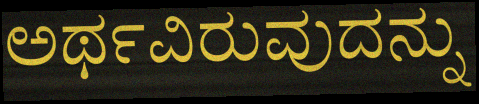
ಅರ್ಥವಿರುವುದನ್ನು